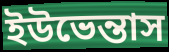
ইউভেন্তাস